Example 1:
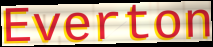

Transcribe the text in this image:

Everton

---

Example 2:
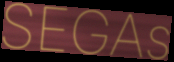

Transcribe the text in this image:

SEGAs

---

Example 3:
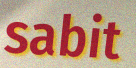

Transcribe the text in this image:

sabit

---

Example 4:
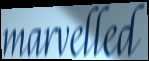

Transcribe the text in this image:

marvelled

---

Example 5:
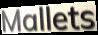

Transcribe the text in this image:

Mallets